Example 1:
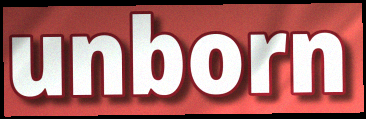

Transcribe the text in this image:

unborn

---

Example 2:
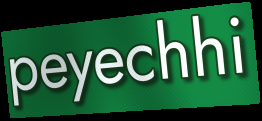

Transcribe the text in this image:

peyechhi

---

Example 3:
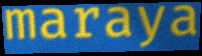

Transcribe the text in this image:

maraya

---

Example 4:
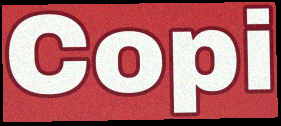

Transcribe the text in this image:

Copi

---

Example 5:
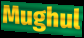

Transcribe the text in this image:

Mughul